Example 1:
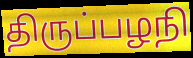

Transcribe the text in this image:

திருப்பழநி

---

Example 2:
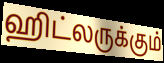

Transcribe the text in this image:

ஹிட்லருக்கும்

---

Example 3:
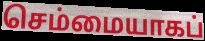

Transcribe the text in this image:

செம்மையாகப்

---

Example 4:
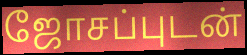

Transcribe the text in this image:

ஜோசப்புடன்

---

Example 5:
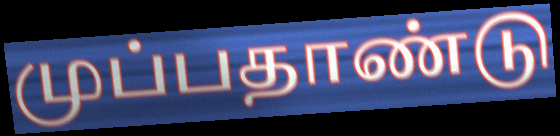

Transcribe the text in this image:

முப்பதாண்டு